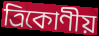
ত্ৰিকোণীয়